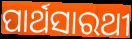
ପାର୍ଥସାରଥୀ